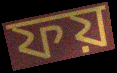
ফয়